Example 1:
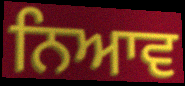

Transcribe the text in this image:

ਨਿਆਵ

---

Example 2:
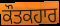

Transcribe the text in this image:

ਕੌਤਕਹਾਰ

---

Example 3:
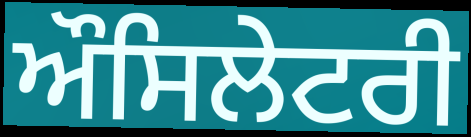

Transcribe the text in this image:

ਔਸਿਲੇਟਰੀ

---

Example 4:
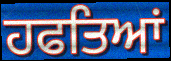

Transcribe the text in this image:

ਹਫਤਿਆਂ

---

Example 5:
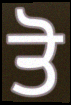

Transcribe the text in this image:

ਤੋ